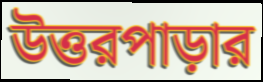
উত্তরপাড়ার